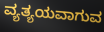
ವ್ಯತ್ಯಯವಾಗುವ